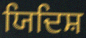
ਯਿਦਿਸ਼